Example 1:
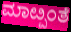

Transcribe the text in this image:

ಮಾೞ್ಪಂತೆ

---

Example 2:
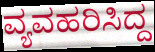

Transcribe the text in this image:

ವ್ಯವಹರಿಸಿದ್ದ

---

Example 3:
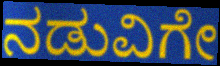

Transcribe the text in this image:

ನಡುವಿಗೇ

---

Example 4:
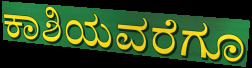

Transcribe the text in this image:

ಕಾಶಿಯವರೆಗೂ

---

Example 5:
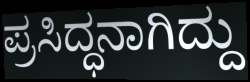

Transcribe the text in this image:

ಪ್ರಸಿದ್ಧನಾಗಿದ್ದು